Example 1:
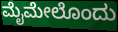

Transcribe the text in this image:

ಮೈಮೇಲೊಂದು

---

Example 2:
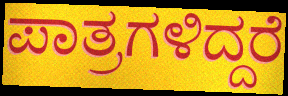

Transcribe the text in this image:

ಪಾತ್ರಗಳಿದ್ದರೆ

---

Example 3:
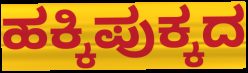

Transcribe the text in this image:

ಹಕ್ಕಿಪುಕ್ಕದ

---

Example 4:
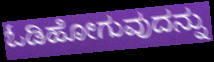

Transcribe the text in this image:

ಓಡಿಹೋಗುವುದನ್ನು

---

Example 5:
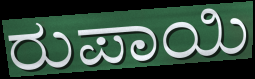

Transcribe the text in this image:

ರುಪಾಯಿ